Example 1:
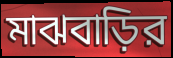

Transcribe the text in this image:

মাঝবাড়ির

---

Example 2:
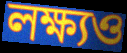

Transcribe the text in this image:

লক্ষ্যও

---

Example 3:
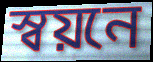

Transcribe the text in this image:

স্বয়নে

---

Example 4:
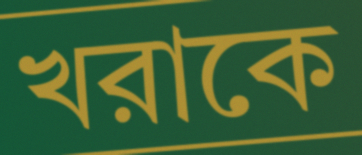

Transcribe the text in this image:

খরাকে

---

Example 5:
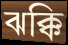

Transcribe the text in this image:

ঝক্কি